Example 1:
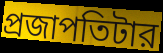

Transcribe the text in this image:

প্রজাপতিটার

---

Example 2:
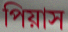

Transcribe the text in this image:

পিয়াস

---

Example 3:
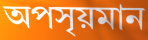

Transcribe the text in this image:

অপসৃয়মান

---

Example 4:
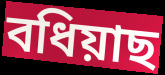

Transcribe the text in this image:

বধিয়াছ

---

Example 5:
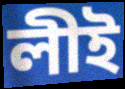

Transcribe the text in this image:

লীই